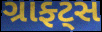
ગ્રાફ્ટ્સ